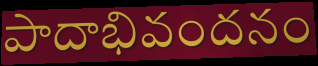
పాదాభివందనం